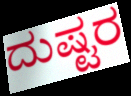
ದುಷ್ಟರ